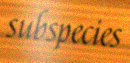
subspecies